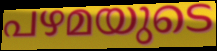
പഴമയുടെ